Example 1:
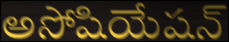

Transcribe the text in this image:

అసోషియేషన్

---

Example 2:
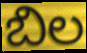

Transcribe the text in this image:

బిల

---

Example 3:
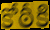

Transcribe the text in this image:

కోఠీకి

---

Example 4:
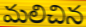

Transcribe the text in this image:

మలిచిన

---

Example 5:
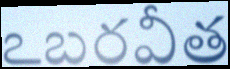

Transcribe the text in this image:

ఽబరవీత